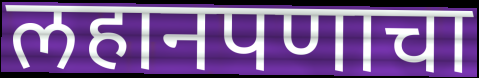
लहानपणाचा